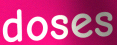
doses